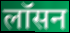
लॉसन